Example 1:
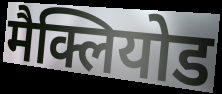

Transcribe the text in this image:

मैक्लियोड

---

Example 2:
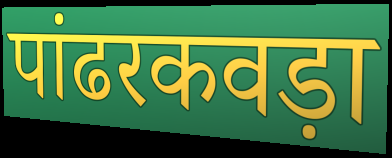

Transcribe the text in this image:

पांढरकवड़ा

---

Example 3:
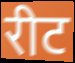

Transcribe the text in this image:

रीट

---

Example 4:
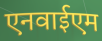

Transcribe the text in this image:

एनवाईएम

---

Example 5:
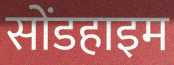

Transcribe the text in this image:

सोंडहाइम